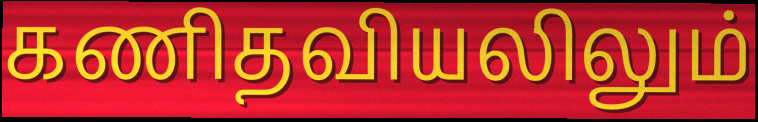
கணிதவியலிலும்